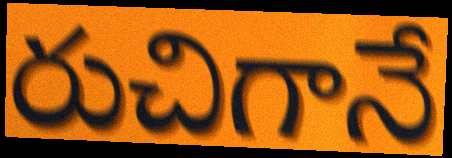
రుచిగానే